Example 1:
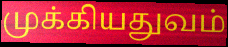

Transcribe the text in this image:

முக்கியதுவம்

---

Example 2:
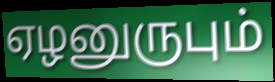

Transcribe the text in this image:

ஏழனுருபும்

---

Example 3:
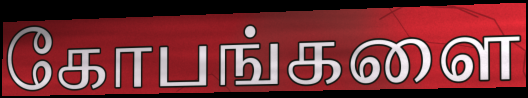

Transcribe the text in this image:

கோபங்களை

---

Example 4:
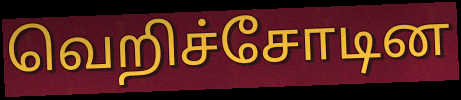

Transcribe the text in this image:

வெறிச்சோடின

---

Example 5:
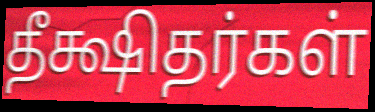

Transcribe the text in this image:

தீக்ஷிதர்கள்